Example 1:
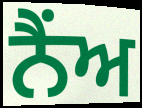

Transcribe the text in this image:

ਨੈਂਅ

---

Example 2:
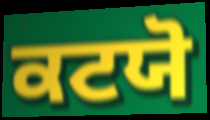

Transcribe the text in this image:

ਕਟਯੋ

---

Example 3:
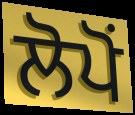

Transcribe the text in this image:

ਲੋਪੋਂ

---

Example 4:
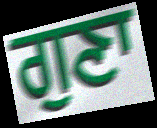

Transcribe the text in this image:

ਗੁਣਾ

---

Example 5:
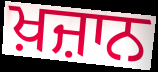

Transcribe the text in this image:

ਖ਼ਜ਼ਾਨ